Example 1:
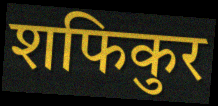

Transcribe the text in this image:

शफिकुर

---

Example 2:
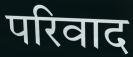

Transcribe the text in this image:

परिवाद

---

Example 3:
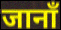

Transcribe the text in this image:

जानाँ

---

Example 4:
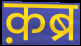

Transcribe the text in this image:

क़ब्र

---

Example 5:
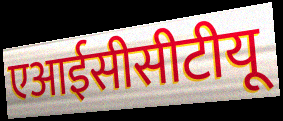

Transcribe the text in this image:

एआईसीसीटीयू